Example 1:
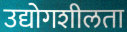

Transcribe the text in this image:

उद्योगशीलता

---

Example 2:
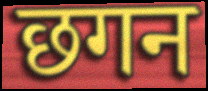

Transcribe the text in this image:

छगन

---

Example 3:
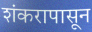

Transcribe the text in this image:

शंकरापासून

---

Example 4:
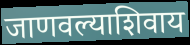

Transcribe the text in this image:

जाणवल्याशिवाय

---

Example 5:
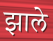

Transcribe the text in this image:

झाले